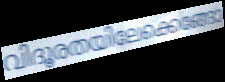
വിദൂരതയിലേക്കെങ്ങോ